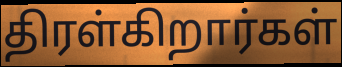
திரள்கிறார்கள்